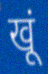
खूं